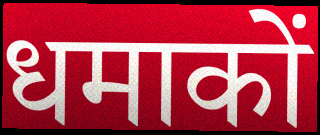
धमाकों